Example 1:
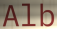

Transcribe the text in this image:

Alb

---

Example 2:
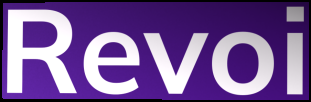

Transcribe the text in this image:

Revoi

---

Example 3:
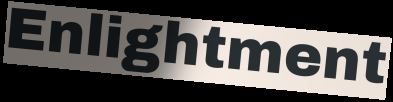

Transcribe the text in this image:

Enlightment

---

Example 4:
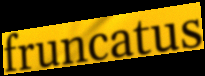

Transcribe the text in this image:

fruncatus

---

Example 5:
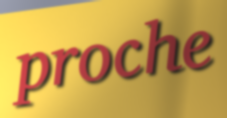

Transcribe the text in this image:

proche